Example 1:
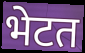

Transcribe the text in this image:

भेटत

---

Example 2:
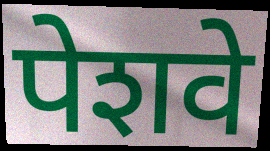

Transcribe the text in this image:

पेशवे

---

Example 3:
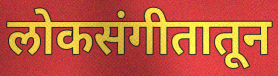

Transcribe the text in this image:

लोकसंगीतातून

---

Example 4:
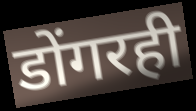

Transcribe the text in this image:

डोंगरही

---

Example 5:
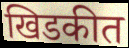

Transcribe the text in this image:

खिडकीत